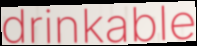
drinkable